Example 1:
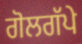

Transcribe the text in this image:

ਗੋਲਗੱਪੇ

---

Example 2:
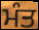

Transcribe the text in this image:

ਮੰਤ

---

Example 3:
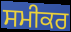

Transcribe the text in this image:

ਸਮੀਕਰ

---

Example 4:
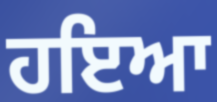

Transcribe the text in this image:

ਹਇਆ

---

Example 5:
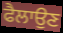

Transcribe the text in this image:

ਫੈਲਾਉਣ